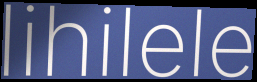
lihilele